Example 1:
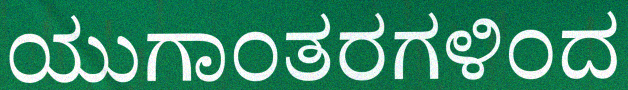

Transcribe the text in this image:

ಯುಗಾಂತರಗಳಿಂದ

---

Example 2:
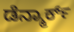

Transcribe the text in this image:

ಡೆನ್ಮಾರ್ಕ್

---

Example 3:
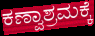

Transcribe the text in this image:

ಕಣ್ವಾಶ್ರಮಕ್ಕೆ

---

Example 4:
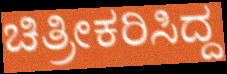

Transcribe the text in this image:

ಚಿತ್ರೀಕರಿಸಿದ್ದ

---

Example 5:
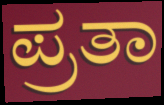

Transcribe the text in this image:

ಪ್ರತಾ